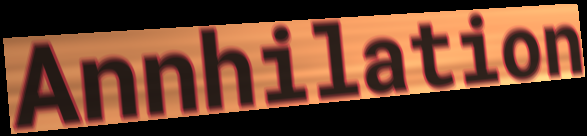
Annhilation